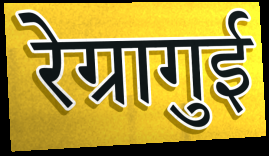
रेग्रागुई